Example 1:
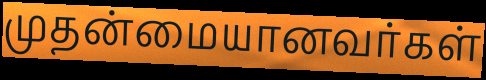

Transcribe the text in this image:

முதன்மையானவர்கள்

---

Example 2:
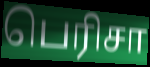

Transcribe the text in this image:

பெரிசா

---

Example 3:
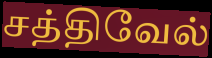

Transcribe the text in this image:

சத்திவேல்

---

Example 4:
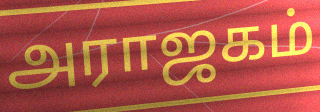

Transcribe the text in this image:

அராஜகம்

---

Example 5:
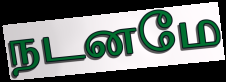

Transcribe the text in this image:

நடனமே